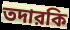
তদারকি